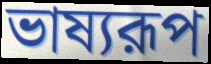
ভাষ্যরূপ